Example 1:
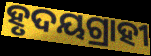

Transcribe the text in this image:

ହୃଦୟଗ୍ରାହୀ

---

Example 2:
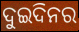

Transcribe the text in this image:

ଦୁଇଦିନର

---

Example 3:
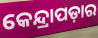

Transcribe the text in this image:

କେନ୍ଦ୍ରାପଡ଼ାର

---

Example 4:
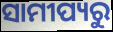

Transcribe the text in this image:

ସାମୀପ୍ୟରୁ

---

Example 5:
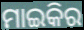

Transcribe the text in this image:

ମାଇକିର